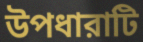
উপধারাটি